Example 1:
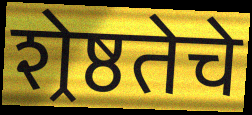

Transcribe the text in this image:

श्रेष्ठतेचे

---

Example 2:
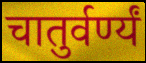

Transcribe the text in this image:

चातुर्वर्ण्यं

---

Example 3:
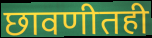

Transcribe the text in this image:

छावणीतही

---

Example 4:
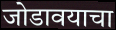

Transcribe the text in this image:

जोडावयाचा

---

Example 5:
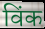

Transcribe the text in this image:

विंक